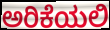
ಅರಿಕೆಯಲಿ